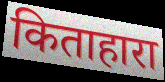
किताहारा